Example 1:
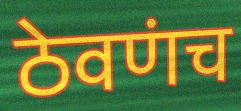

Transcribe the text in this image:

ठेवणंच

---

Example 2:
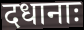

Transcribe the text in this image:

दधानाः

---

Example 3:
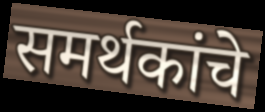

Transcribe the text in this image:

समर्थकांचे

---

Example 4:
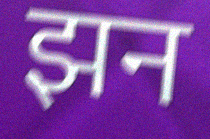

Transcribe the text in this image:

झन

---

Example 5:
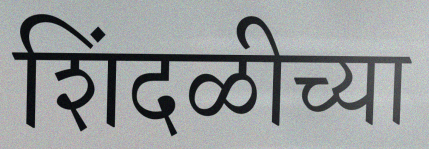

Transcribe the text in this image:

शिंदळीच्या